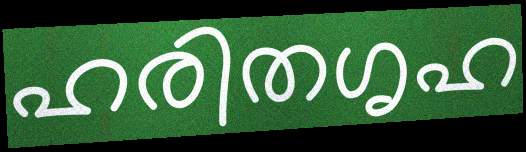
ഹരിതഗൃഹ